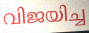
വിജയിച്ച